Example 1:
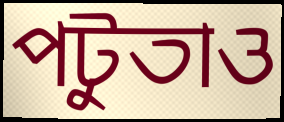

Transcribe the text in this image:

পটুতাও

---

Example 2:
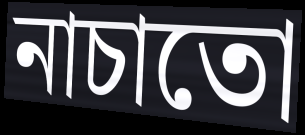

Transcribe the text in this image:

নাচাতো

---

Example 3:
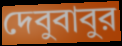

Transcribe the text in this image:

দেবুবাবুর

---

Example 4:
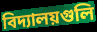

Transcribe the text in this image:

বিদ্যালয়গুলি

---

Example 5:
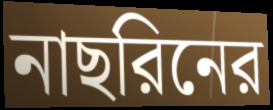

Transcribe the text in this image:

নাছরিনের